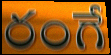
రంగే